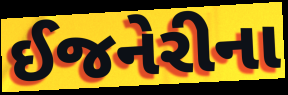
ઈજનેરીના